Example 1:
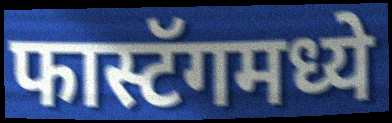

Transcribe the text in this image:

फास्टॅगमध्ये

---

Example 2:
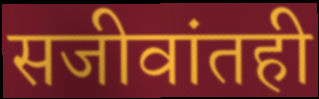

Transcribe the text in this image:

सजीवांतही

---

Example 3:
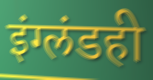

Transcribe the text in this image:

इंग्लंडही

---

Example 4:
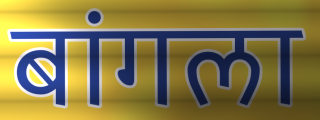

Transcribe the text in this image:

बांगला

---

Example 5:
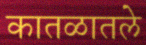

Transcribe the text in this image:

कातळातले